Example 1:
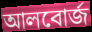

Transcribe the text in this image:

আলবোর্জ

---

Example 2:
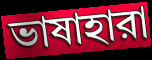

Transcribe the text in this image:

ভাষাহারা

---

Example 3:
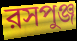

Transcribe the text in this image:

রসপুঞ্জ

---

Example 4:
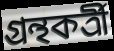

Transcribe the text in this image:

গ্রন্থকর্ত্রী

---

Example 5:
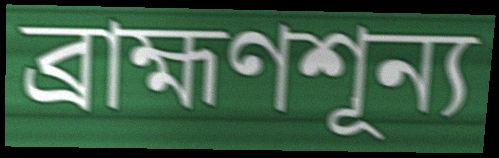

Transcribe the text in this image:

ব্রাহ্মণশূন্য